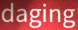
daging